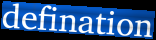
defination